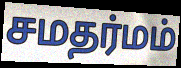
சமதர்மம்